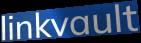
linkvault